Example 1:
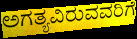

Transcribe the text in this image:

ಅಗತ್ಯವಿರುವವರಿಗೆ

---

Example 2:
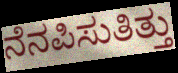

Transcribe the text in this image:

ನೆನಪಿಸುತಿತ್ತು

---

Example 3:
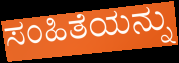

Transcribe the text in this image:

ಸಂಹಿತೆಯನ್ನು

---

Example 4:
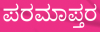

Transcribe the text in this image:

ಪರಮಾಪ್ತರ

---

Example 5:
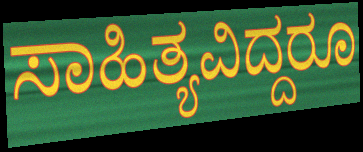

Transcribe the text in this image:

ಸಾಹಿತ್ಯವಿದ್ದರೂ